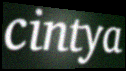
cintya